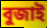
বুজাই